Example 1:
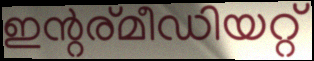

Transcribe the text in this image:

ഇന്റര്മീഡിയറ്റ്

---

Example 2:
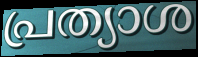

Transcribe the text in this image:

പ്രത്യാശ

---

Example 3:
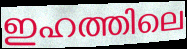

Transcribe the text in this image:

ഇഹത്തിലെ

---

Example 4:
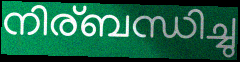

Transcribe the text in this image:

നിര്ബന്ധിച്ചു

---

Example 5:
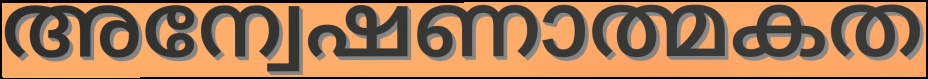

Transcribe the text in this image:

അന്വേഷണാത്മകത